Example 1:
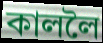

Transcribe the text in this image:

কাললৈ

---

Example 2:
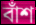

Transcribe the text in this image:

বাঁশ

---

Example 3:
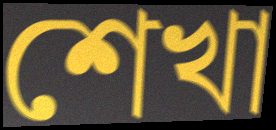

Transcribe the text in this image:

শেখা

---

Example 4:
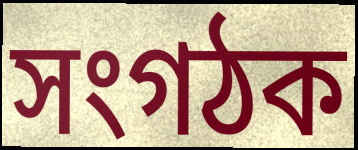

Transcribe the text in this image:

সংগঠক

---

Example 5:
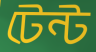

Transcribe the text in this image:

টেন্ট